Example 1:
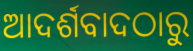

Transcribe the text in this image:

ଆଦର୍ଶବାଦଠାରୁ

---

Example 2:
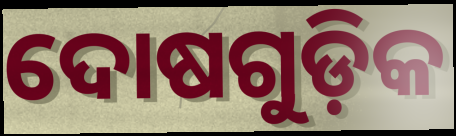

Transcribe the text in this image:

ଦୋଷଗୁଡ଼ିକ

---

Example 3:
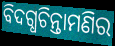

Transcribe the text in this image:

ବିଦଗ୍ଧଚିନ୍ତାମଣିର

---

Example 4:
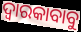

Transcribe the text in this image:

ଦ୍ୱାରକାବାବୁ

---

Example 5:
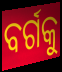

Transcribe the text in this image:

ବର୍ଗକୁ